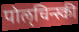
पोल्चिन्स्की